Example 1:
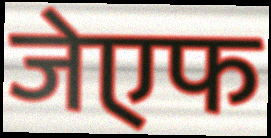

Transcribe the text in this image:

जेएफ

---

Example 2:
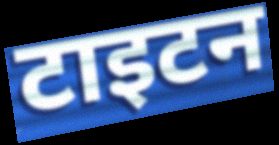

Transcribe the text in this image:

टाइटन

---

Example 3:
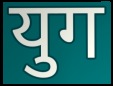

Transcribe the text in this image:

युग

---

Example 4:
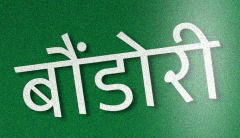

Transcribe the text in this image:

बौंडोरी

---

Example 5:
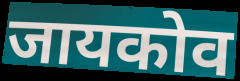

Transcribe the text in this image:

जायकोव